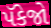
પૅકેજો